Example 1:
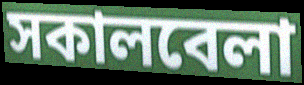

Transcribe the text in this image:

সকালবেলা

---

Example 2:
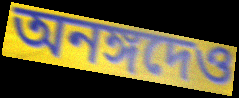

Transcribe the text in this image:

অনঙ্গদেও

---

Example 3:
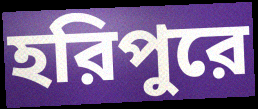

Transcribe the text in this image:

হরিপুরে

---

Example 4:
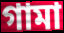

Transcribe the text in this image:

গামা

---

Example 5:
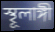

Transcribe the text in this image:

স্থূলাঙ্গী